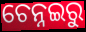
ଚେନ୍ନଇରୁ